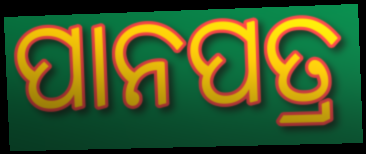
ପାନପତ୍ର